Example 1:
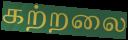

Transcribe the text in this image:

கற்றலை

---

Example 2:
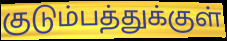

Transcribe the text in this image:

குடும்பத்துக்குள்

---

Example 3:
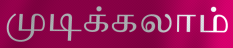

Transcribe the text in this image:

முடிக்கலாம்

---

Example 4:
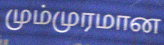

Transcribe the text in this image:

மும்முரமான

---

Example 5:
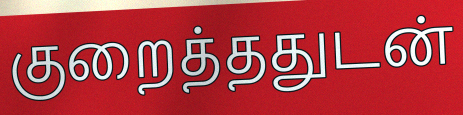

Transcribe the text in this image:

குறைத்ததுடன்